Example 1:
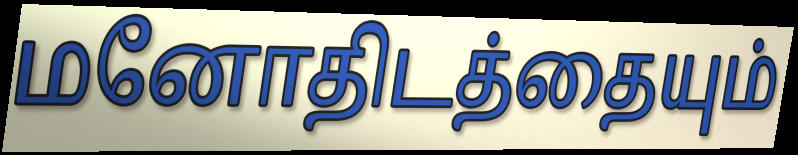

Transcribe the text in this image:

மனோதிடத்தையும்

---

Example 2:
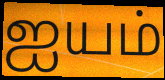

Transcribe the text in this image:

ஐயம்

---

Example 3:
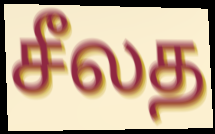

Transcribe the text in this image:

சீலத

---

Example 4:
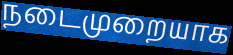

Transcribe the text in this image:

நடைமுறையாக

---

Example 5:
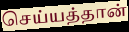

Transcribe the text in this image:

செய்யத்தான்